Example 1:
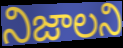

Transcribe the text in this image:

నిజాలని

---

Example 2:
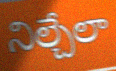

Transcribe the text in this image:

నిల్చేలా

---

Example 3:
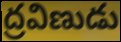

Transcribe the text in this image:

ద్రవిణుడు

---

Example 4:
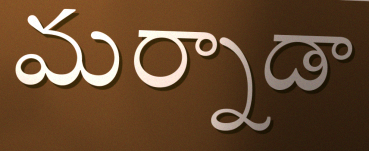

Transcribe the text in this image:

మర్నాడా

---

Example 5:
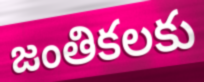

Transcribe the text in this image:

జంతికలకు